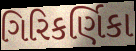
ગિરિકર્ણિકા